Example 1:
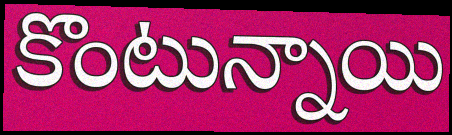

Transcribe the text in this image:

కొంటున్నాయి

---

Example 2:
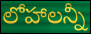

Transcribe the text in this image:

లోహాలన్నీ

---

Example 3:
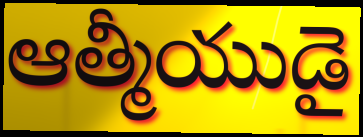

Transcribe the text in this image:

ఆత్మీయుడై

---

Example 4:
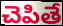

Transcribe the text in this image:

చెపితే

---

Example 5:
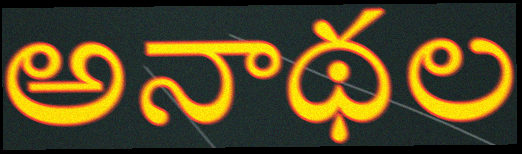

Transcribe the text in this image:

అనాథల